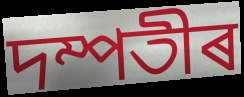
দম্পতীৰ